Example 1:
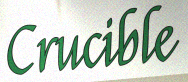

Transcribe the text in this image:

Crucible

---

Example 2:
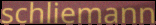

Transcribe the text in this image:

schliemann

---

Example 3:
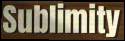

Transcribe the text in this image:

Sublimity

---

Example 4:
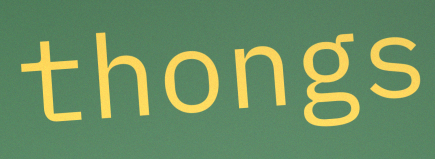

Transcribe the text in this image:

thongs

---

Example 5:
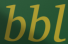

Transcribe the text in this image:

bbl